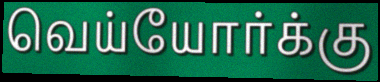
வெய்யோர்க்கு